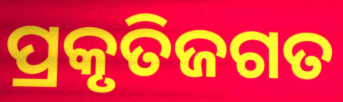
ପ୍ରକୃତିଜଗତ